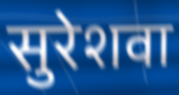
सुरेशवा